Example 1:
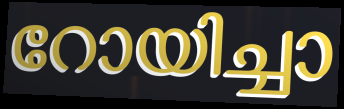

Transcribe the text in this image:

റോയിച്ചാ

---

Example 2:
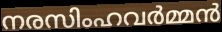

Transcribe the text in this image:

നരസിംഹവർമ്മൻ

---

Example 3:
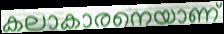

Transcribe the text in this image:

കലാകാരനെയാണ്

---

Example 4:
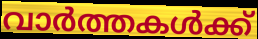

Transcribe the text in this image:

വാർത്തകൾക്ക്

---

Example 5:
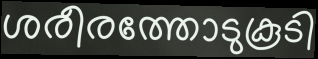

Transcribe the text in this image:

ശരീരത്തോടുകൂടി